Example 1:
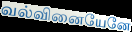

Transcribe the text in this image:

வல்வினையேனே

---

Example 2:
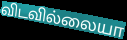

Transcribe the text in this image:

விடவில்லையா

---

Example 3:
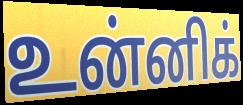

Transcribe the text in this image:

உன்னிக்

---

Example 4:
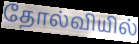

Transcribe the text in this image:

தோல்வியில்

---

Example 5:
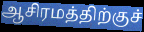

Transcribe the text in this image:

ஆசிரமத்திற்குச்